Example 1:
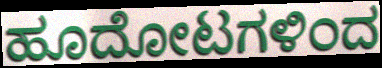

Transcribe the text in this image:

ಹೂದೋಟಗಳಿಂದ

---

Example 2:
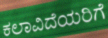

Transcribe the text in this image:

ಕಲಾವಿದೆಯರಿಗೆ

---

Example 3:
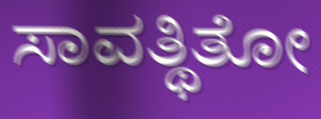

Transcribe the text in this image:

ಸಾವತ್ಥಿತೋ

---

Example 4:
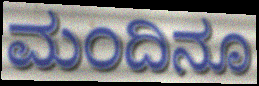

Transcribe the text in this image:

ಮಂದಿನೂ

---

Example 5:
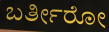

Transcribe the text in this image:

ಬರ್ತೀರೋ